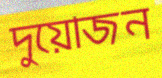
দুয়োজন